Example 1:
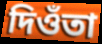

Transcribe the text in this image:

দিওঁতা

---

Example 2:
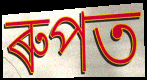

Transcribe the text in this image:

ৰুপত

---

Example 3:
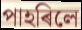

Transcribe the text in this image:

পাহৰিলে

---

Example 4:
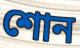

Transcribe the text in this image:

শোন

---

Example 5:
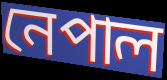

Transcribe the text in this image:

নেপাল